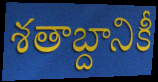
శతాబ్దానికీ